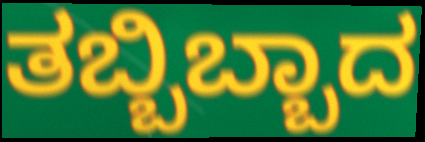
ತಬ್ಬಿಬ್ಬಾದ